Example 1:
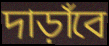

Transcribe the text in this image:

দাড়াঁবে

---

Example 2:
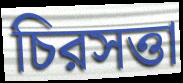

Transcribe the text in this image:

চিরসত্তা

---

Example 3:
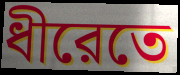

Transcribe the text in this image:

ধীরেতে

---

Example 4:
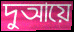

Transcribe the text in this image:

দুআয়ে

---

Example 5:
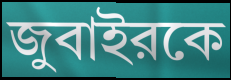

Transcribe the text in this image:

জুবাইরকে